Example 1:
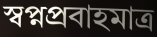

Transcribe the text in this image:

স্বপ্নপ্রবাহমাত্র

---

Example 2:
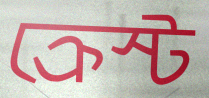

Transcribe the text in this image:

ক্রেস্ট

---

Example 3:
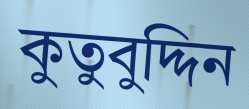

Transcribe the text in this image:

কুতুবুদ্দিন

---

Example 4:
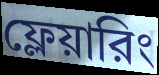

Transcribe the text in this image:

ফ্লেয়ারিং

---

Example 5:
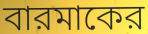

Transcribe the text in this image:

বারমাকের